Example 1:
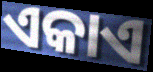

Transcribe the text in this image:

ଏକାଏ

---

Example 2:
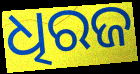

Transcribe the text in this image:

ଧିରଜ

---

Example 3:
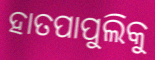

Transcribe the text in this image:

ହାତପାପୁଲିକୁ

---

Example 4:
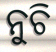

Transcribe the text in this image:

ନୁଚି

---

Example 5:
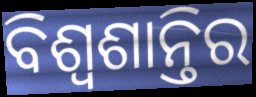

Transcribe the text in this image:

ବିଶ୍ୱଶାନ୍ତିର